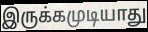
இருக்கமுடியாது